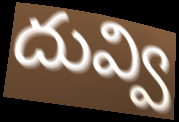
దువ్వి